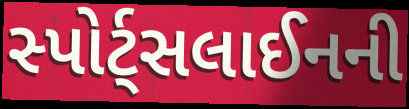
સ્પોર્ટ્સલાઈનની